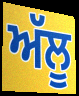
ਅੱਲੂ